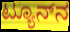
ಟ್ಯೂನ್‌ನ